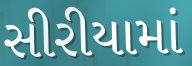
સીરીયામાં